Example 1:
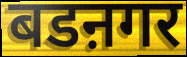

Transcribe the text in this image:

बडऩगर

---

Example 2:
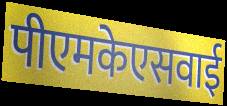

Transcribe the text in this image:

पीएमकेएसवाई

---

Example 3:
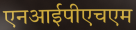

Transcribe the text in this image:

एनआईपीएचएम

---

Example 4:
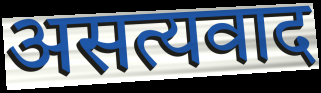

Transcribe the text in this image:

असत्यवाद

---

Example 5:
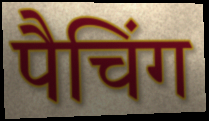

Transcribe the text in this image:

पैचिंग